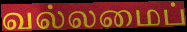
வல்லமைப்